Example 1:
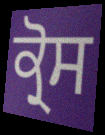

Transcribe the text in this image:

ਕ੍ਰੋਸ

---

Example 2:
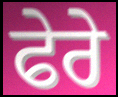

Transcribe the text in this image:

ਫੇਰੇ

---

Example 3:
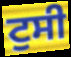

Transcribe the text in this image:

ਟੁਸੀ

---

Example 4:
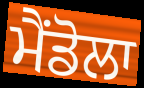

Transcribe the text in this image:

ਮੈਂਡੋਲਾ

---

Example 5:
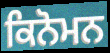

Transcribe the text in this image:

ਕਿਨੋਮਨ